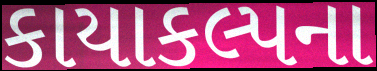
કાયાકલ્પના